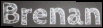
Brenan